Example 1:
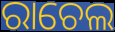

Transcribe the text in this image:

ରାଚେଲ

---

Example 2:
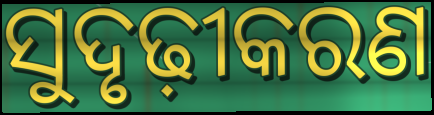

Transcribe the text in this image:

ସୁଦୃଢ଼ୀକରଣ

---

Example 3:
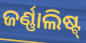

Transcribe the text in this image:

ଜର୍ଣ୍ଣାଲିଷ୍ଟ୍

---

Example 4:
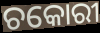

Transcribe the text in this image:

ଚକୋରୀ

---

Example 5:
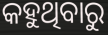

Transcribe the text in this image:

କହୁଥିବାରୁ